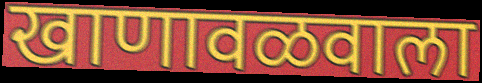
खाणावळवाला